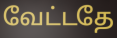
வேட்டதே